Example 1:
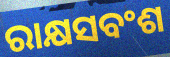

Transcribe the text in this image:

ରାକ୍ଷସବଂଶ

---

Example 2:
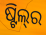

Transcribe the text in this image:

ଷ୍ଟିଲ୍‌ର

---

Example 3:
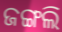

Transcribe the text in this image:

ଜଙ୍ଗଲି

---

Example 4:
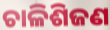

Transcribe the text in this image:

ଚାଳିଶିଜଣ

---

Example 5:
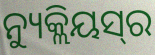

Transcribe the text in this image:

ନ୍ୟୁକ୍ଲିୟସ୍‌ର